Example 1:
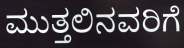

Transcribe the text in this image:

ಮುತ್ತಲಿನವರಿಗೆ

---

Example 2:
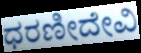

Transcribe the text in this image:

ಧರಣೀದೇವಿ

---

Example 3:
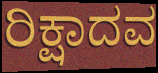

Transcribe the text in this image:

ರಿಕ್ಷಾದವ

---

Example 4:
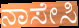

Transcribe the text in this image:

ನಾಸೇಸಿ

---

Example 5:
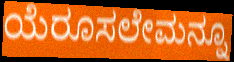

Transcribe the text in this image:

ಯೆರೂಸಲೇಮನ್ನೂ